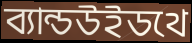
ব্যান্ডউইডথে